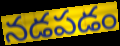
నడపడం